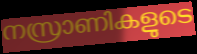
നസ്രാണികളുടെ